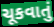
ચૂકવાતું